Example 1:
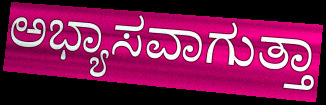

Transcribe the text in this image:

ಅಭ್ಯಾಸವಾಗುತ್ತಾ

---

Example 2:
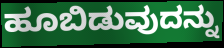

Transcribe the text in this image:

ಹೂಬಿಡುವುದನ್ನು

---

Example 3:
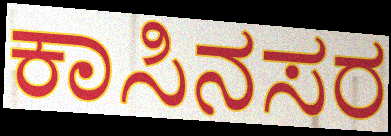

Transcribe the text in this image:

ಕಾಸಿನಸರ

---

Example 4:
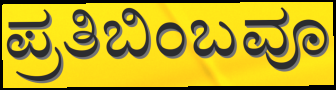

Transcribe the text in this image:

ಪ್ರತಿಬಿಂಬವೂ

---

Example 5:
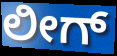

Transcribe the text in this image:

ಲೀಗ್